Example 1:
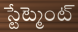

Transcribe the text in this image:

స్టేట్మెంట్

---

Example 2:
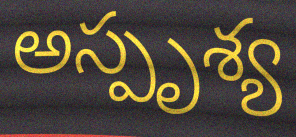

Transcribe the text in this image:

అస్పృశ్య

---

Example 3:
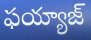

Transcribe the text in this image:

ఫయ్యాజ్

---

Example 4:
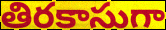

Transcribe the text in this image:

తిరకాసుగా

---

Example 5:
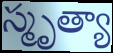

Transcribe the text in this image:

స్మృత్యా